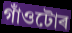
গাঁওটোৰ